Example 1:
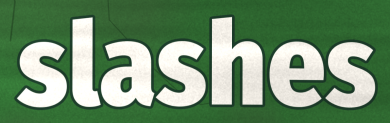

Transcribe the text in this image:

slashes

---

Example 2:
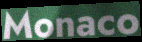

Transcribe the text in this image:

Monaco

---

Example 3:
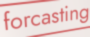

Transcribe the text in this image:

forcasting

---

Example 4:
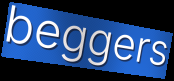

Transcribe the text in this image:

beggers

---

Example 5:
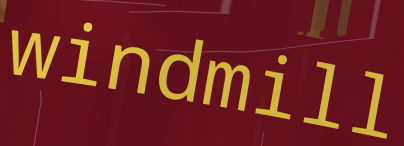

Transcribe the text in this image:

windmill